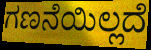
ಗಣನೆಯಿಲ್ಲದೆ